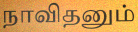
நாவிதனும்